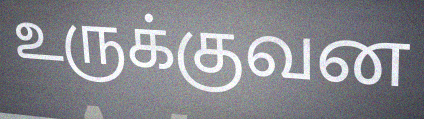
உருக்குவன